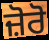
ਜ਼ੋਰੋ